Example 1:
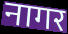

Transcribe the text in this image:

नागर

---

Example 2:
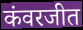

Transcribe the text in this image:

कंवरजीत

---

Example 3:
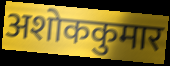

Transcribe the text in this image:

अशोककुमार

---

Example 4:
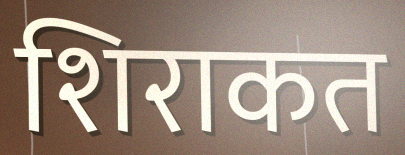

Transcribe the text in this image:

शिराकत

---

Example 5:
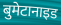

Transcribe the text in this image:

बुमेटानाइड